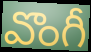
వొంగీ